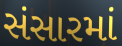
સંસારમાં